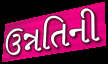
ઉન્નતિની